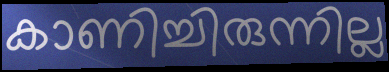
കാണിച്ചിരുന്നില്ല